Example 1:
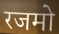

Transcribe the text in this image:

रजमो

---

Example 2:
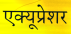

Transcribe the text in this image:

एक्यूप्रेशर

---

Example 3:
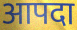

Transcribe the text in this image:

आपदा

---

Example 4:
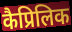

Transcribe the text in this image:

कैप्रिलिक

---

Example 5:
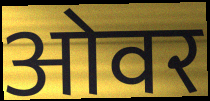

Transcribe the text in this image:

ओवर